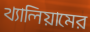
থ্যালিয়ামের